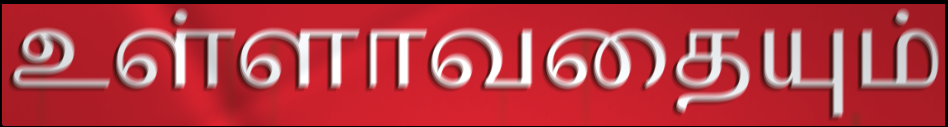
உள்ளாவதையும்